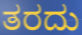
ತರದು